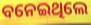
ବନେଇଥିଲେ